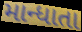
માન્ધાતા